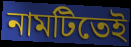
নামটিতেই